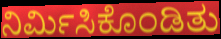
ನಿರ್ಮಿಸಿಕೊಂಡಿತು